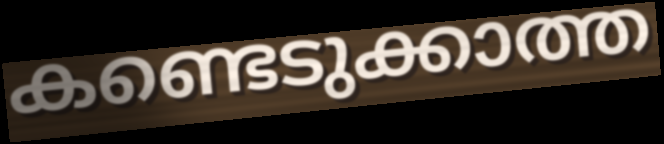
കണ്ടെടുക്കാത്ത